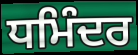
ਧਮਿੰਦਰ